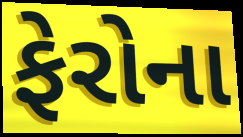
ફેરોના